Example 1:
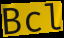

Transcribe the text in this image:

Bcl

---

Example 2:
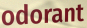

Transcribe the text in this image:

odorant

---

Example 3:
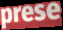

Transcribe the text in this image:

prese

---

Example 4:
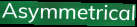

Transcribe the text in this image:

Asymmetrical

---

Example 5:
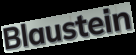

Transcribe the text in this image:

Blaustein